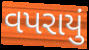
વપરાયું